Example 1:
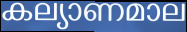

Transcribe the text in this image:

കല്യാണമാല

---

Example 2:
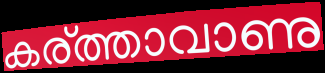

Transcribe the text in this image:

കര്ത്താവാണു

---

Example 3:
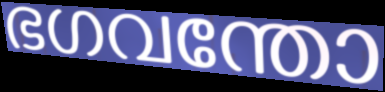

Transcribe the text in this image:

ഭഗവന്തോ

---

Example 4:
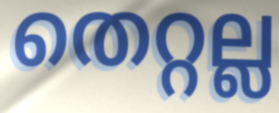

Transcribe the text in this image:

തെറ്റല്ല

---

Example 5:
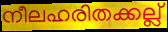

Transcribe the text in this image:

നീലഹരിതക്കല്ല്